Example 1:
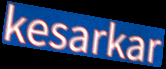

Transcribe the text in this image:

kesarkar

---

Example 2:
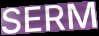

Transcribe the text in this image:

SERM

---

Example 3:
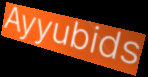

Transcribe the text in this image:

Ayyubids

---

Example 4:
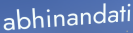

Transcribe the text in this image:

abhinandati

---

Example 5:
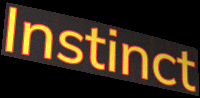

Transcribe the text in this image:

Instinct